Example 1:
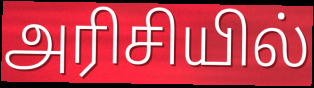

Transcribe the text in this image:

அரிசியில்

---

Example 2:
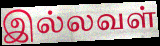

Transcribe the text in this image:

இல்லவள்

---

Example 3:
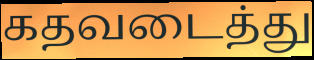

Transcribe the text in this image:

கதவடைத்து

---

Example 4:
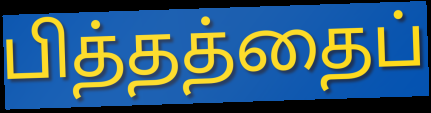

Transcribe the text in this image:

பித்தத்தைப்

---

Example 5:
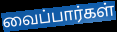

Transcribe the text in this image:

வைப்பார்கள்